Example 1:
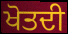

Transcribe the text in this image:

ਖੋਤਦੀ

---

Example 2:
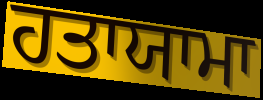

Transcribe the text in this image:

ਹਤਾਯਾਮਾ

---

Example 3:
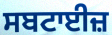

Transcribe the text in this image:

ਸਬਟਾਈਜ਼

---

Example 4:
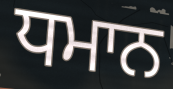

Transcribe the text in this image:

ਧਮਾਨ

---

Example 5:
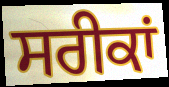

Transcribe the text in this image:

ਸਰੀਕਾਂ